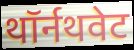
थॉर्नथवेट